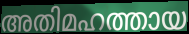
അതിമഹത്തായ